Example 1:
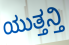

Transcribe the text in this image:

ಯುತ್ತನ್ತಿ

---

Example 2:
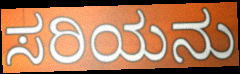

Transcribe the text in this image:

ಸರಿಯನು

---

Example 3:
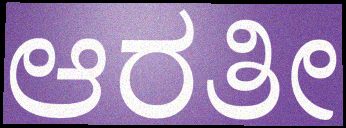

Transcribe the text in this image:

ಆರತೀ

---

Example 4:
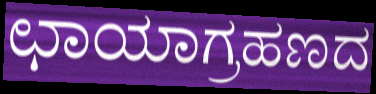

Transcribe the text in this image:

ಛಾಯಾಗ್ರಹಣದ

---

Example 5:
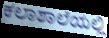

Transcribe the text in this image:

ಕಲಾಶಾಲೆಯಲ್ಲಿ